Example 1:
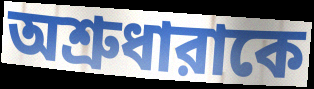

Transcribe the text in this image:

অশ্রুধারাকে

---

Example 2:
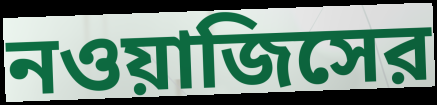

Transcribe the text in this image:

নওয়াজিসের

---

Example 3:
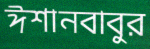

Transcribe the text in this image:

ঈশানবাবুর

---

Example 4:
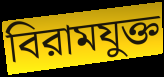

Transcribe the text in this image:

বিরামযুক্ত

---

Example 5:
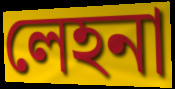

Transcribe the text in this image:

লেহনা